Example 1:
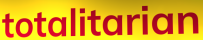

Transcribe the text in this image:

totalitarian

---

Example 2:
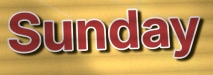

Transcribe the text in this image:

Sunday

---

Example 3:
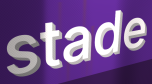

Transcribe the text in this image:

stade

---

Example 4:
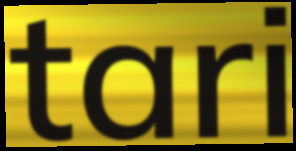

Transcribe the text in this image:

tari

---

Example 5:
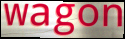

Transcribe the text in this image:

wagon